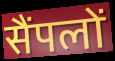
सैंपलों